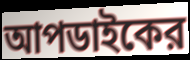
আপডাইকের